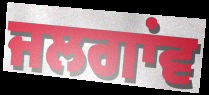
ਜਲਗਾਂਵ